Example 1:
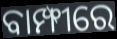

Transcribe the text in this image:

ବାମ୍ଫୀରେ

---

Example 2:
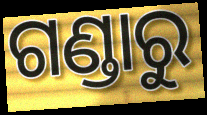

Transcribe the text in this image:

ଗଣ୍ଡାରୁ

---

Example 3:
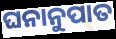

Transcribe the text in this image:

ଘନାନୁପାତ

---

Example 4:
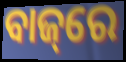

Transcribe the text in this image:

ବାଜ୍‌ରେ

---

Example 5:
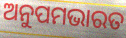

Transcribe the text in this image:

ଅନୁପମଭାରତ